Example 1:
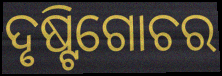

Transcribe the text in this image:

ଦୃଷ୍ଟିଗୋଚର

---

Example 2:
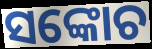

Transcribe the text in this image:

ସଙ୍କୋଚ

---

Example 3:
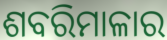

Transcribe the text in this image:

ଶବରିମାଳାର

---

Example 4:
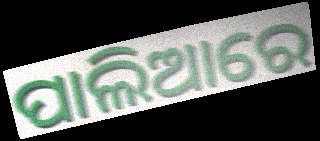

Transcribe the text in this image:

ପାଲିଆରେ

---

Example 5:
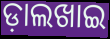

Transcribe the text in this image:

ଡ଼ାଲଖାଇ